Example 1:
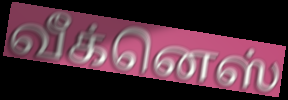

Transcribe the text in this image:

வீக்னெஸ்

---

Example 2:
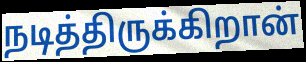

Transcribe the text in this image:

நடித்திருக்கிறான்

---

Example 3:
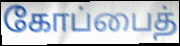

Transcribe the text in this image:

கோப்பைத்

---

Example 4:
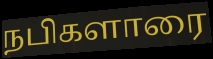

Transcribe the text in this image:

நபிகளாரை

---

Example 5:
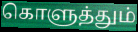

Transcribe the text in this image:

கொளுத்தும்